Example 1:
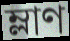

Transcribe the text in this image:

ম্লাণ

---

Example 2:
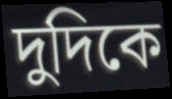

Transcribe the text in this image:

দুদিকে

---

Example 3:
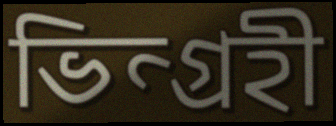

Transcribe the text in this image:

ভিন্গ্রহী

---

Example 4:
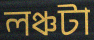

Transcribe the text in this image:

লঞ্চটা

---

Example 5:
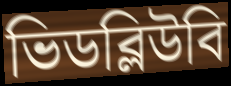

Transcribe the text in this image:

ভিডব্লিউবি